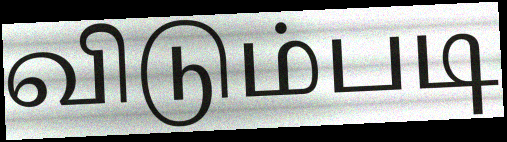
விடும்படி